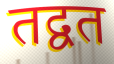
तद्वत